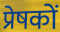
प्रेषकों